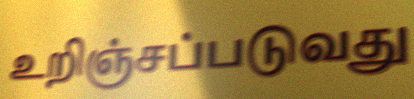
உறிஞ்சப்படுவது